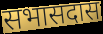
सभासदास